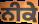
ਨੀਕੇ